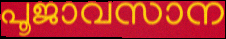
പൂജാവസാന